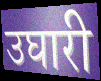
उघारी